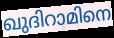
ഖുദിറാമിനെ